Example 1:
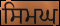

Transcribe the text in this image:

ਸਿਮਘ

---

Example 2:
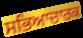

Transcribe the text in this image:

ਸਭਿਆਚਾਰਕ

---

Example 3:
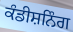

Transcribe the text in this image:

ਕੰਡੀਸ਼ਨਿੰਗ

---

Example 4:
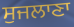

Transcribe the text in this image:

ਸੁਜਲਾਣਾ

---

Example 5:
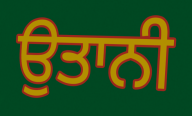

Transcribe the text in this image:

ਉਤਾਨੀ